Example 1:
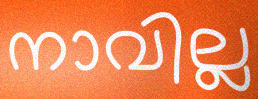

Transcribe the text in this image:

നാവില്ല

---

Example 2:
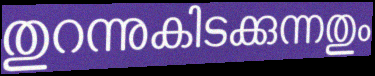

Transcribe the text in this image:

തുറന്നുകിടക്കുന്നതും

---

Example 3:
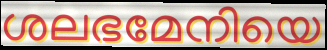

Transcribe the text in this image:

ശലഭമേനിയെ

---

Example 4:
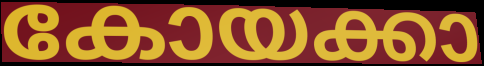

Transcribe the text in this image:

കോയക്കാ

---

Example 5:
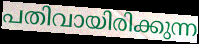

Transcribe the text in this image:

പതിവായിരിക്കുന്ന